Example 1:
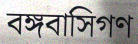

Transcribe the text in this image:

বঙ্গবাসিগণ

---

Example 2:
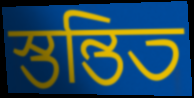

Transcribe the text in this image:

স্তন্তিত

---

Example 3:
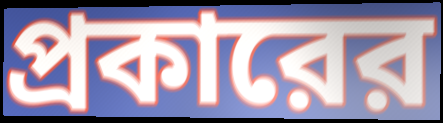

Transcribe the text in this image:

প্রকারের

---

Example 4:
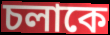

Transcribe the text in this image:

চলাকে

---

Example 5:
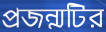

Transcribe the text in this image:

প্রজন্মটির